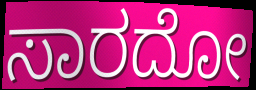
ಸಾರದೋ